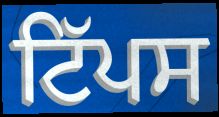
ਟਿੱਪਸ